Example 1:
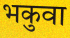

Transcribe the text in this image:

भकुवा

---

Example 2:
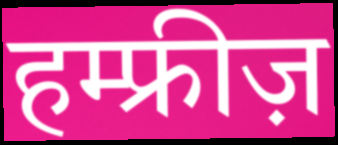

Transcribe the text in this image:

हम्फ्रीज़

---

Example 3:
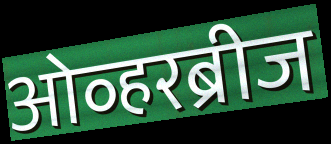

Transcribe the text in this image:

ओव्हरब्रीज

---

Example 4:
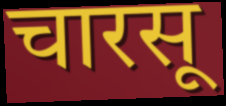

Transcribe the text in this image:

चारसू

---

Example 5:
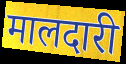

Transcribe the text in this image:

मालदारी